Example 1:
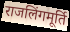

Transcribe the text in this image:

राजलिंगमूर्ति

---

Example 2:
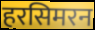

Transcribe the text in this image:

हरसिमरन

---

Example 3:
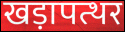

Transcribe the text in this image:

खड़ापत्थर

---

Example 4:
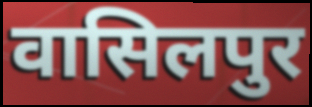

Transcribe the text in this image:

वासिलपुर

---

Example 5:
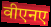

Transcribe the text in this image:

वीएनए